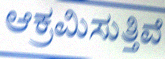
ಆಕ್ರಮಿಸುತ್ತಿವೆ